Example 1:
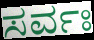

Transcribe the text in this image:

ಸರ್ವಃ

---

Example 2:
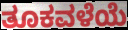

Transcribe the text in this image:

ತೂಕವಳೆಯೆ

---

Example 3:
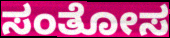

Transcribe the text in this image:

ಸಂತೋಸ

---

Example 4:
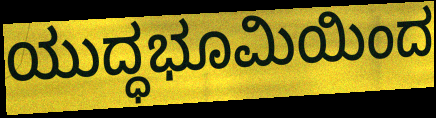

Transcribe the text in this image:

ಯುದ್ಧಭೂಮಿಯಿಂದ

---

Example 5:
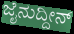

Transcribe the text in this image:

ಜೈನುದ್ದೀನ್